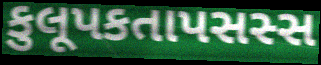
કુલૂપકતાપસસ્સ